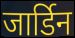
जार्डिन